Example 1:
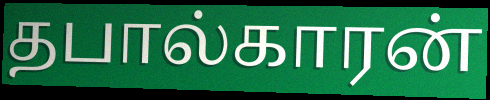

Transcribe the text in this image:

தபால்காரன்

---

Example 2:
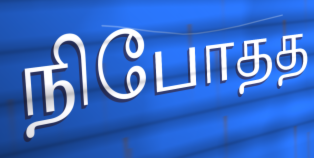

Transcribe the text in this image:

நிபோதத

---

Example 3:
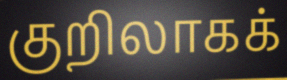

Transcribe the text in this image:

குறிலாகக்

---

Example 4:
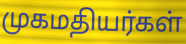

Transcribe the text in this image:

முகமதியர்கள்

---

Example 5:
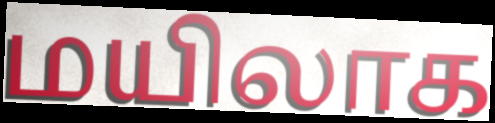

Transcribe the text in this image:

மயிலாக